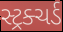
સ્ટ્રક્ચર્ડ